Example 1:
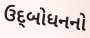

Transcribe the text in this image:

ઉદ્‌બોધનનો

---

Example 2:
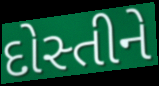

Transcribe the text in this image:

દોસ્તીને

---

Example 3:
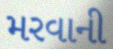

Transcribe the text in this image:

મરવાની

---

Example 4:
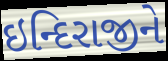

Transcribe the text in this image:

ઇન્દિરાજીને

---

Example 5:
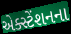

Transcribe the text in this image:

એક્સ્ટેંશનના